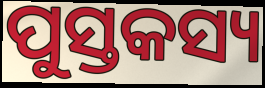
ପୁସ୍ତକସ୍ୟ